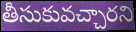
తీసుకువచ్చారని